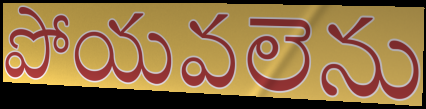
పోయవలెను